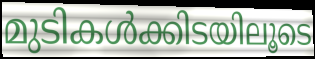
മുടികൾക്കിടയിലൂടെ